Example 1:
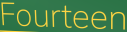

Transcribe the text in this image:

Fourteen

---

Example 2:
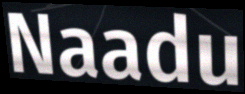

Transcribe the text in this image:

Naadu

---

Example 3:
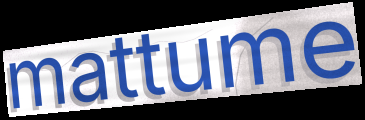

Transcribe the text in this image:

mattume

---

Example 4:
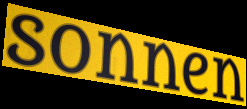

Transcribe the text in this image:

sonnen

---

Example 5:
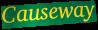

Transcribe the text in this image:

Causeway